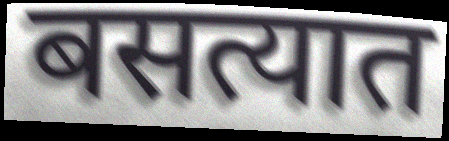
बसत्यात